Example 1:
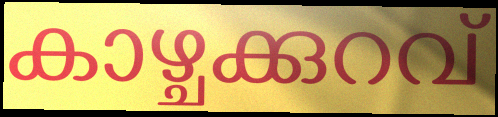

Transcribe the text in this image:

കാഴ്ചക്കുറവ്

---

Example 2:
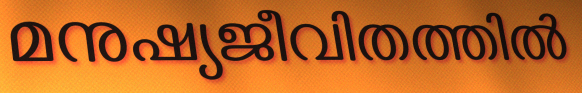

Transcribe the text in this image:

മനുഷ്യജീവിതത്തിൽ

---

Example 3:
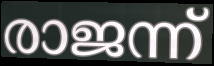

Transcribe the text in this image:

രാജന്ന്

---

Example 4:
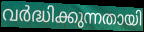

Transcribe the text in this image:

വർദ്ധിക്കുന്നതായി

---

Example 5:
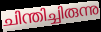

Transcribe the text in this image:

ചിന്തിച്ചിരുന്നു